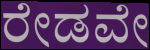
ರೇಡವೇ